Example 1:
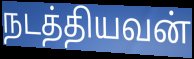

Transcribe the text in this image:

நடத்தியவன்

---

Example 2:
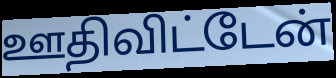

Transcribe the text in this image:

ஊதிவிட்டேன்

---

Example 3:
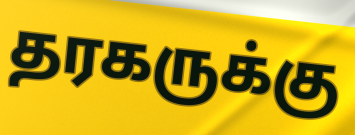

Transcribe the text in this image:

தரகருக்கு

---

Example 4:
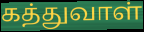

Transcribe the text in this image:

கத்துவாள்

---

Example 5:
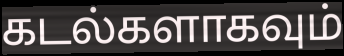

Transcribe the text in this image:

கடல்களாகவும்